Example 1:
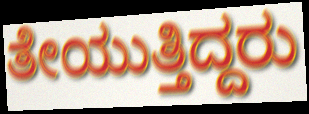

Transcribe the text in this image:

ತೇಯುತ್ತಿದ್ದರು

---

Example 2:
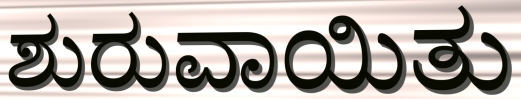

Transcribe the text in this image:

ಶುರುವಾಯಿತು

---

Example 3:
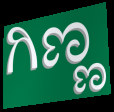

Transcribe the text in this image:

ಗಿಣ್ಣ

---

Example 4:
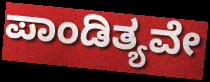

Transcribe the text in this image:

ಪಾಂಡಿತ್ಯವೇ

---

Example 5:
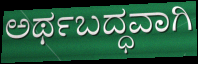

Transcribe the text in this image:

ಅರ್ಥಬದ್ಧವಾಗಿ